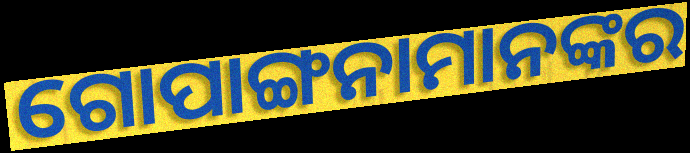
ଗୋପାଙ୍ଗନାମାନଙ୍କର